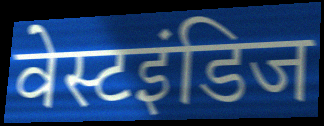
वेस्टइंडिज